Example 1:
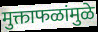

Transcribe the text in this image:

मुक्ताफळांमुळे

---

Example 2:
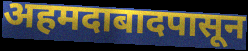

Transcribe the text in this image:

अहमदाबादपासून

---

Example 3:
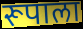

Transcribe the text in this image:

रूपाला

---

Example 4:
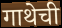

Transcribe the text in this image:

गाथेची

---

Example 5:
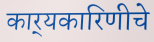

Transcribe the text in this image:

कार्यकारिणीचे